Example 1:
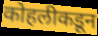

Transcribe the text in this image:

कोहलीकडून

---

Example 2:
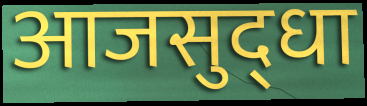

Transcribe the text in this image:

आजसुद्धा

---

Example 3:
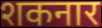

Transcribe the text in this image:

शकनार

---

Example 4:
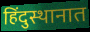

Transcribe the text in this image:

हिंदुस्थानात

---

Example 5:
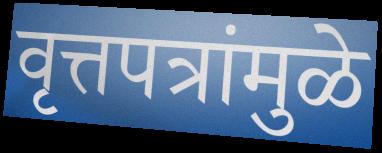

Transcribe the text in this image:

वृत्तपत्रांमुळे